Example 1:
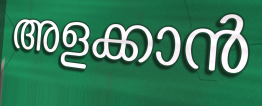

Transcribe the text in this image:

അളക്കാൻ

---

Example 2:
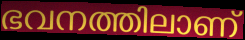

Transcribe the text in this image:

ഭവനത്തിലാണ്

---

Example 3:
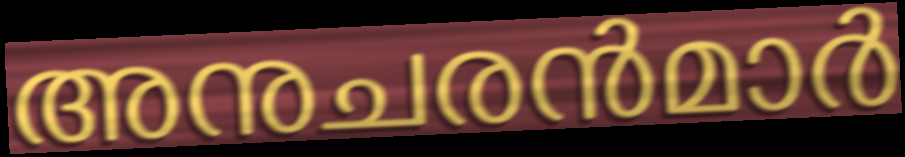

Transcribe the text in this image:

അനുചരൻമാർ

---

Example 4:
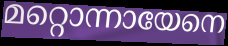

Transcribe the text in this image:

മറ്റൊന്നായേനെ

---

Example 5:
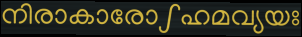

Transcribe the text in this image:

നിരാകാരോഽഹമവ്യയഃ